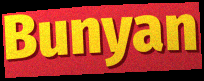
Bunyan